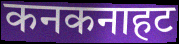
कनकनाहट